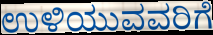
ಉಳಿಯುವವರಿಗೆ